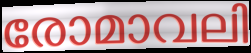
രോമാവലി